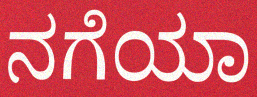
ನಗೆಯಾ